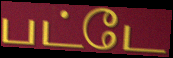
பட்டே